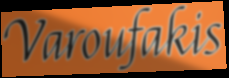
Varoufakis